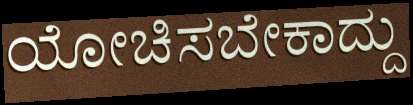
ಯೋಚಿಸಬೇಕಾದ್ದು